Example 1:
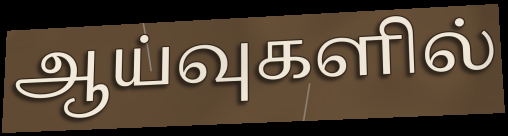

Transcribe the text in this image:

ஆய்வுகளில்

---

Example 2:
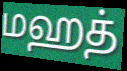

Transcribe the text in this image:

மஹத்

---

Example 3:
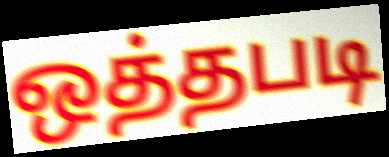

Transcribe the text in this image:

ஒத்தபடி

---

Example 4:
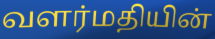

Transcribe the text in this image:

வளர்மதியின்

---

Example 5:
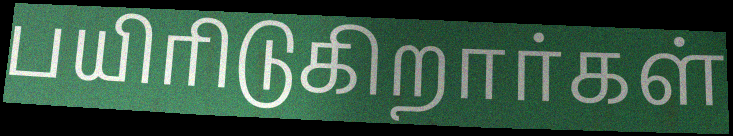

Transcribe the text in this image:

பயிரிடுகிறார்கள்